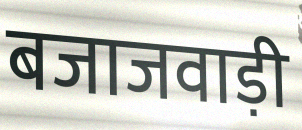
बजाजवाड़ी